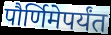
पौर्णिमेपर्यंत